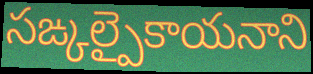
సఙ్కల్పైకాయనాని